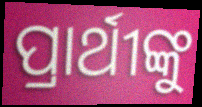
ପ୍ରାର୍ଥୀଙ୍କୁ